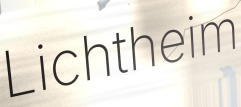
Lichtheim